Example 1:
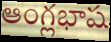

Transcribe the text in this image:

ఆంగ్లభాష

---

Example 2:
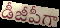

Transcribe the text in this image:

డీజీపీగా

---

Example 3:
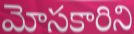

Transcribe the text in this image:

మోసకారిని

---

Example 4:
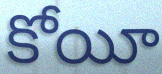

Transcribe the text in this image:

కోయీ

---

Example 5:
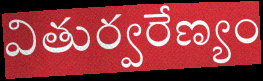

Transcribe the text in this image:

వితుర్వరేణ్యం